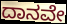
ದಾನವೇ